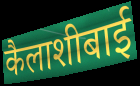
कैलाशीबाई